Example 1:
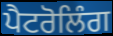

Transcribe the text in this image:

ਪੈਟਰੋਲਿੰਗ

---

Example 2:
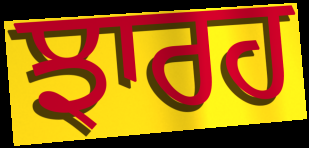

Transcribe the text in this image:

ਝਾਰਹ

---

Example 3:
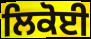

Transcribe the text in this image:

ਲਿਕੋਈ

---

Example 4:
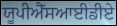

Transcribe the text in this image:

ਯੂਪੀਐੱਸਆਈਡੀਏ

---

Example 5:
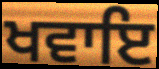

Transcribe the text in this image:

ਖਵਾਇ